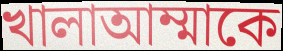
খালাআম্মাকে